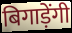
बिगाड़ेंगी